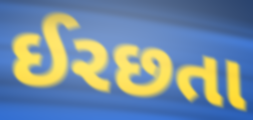
ઈરછતા